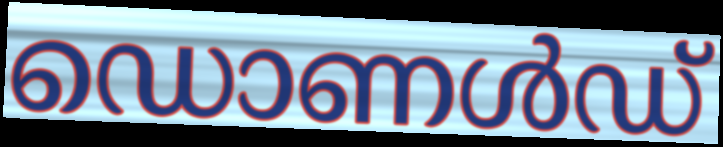
ഡൊണൾഡ്